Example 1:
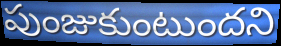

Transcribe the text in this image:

పుంజుకుంటుందని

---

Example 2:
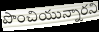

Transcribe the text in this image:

పొంచియున్నారని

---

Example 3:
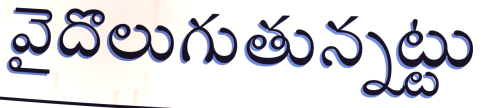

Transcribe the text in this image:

వైదొలుగుతున్నట్టు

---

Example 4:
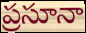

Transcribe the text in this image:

ప్రసూనా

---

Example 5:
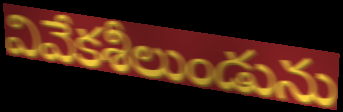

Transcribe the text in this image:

వివేకశీలుండును